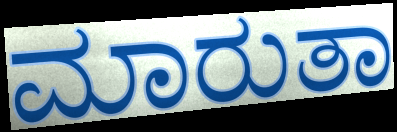
ಮಾರುತಾ